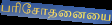
பரிசோதனையை